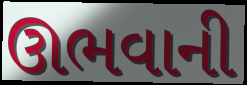
ઊભવાની